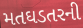
મતઘડતરની